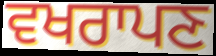
ਵਖਰਾਪਣ